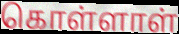
கொள்ளாள்